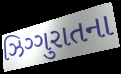
ઝિગ્ગુરાતના